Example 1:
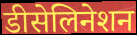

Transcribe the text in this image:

डीसेलिनेशन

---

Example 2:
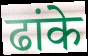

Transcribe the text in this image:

ढांके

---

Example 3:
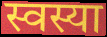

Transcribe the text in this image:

स्वस्या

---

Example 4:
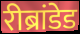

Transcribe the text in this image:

रीब्रांडेड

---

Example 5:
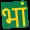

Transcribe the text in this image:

भां